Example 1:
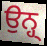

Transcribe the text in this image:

ਉਨ੍ਹ੍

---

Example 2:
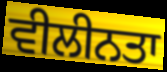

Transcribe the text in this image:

ਵੀਲੀਨਤਾ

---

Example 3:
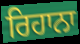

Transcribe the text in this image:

ਰਿਹਾਨਾ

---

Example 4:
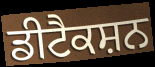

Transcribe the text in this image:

ਡੀਟੈਕਸ਼ਨ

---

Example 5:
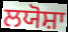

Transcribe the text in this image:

ਲਯੋਸ਼ਾ